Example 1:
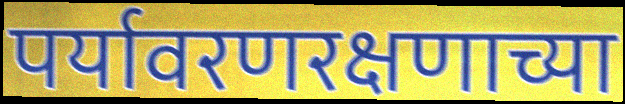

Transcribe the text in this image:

पर्यावरणरक्षणाच्या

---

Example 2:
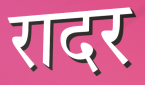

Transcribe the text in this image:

रादर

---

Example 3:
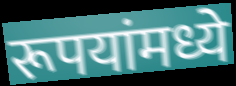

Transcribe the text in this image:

रूपयांमध्ये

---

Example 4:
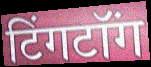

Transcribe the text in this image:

टिंगटॉंग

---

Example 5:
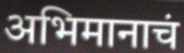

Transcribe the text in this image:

अभिमानाचं